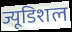
ज्यूडिशल